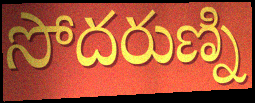
సోదరుణ్ని